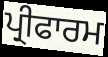
ਪ੍ਰੀਫਾਰਮ